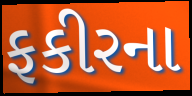
ફકીરના